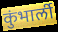
कुंभार्ली